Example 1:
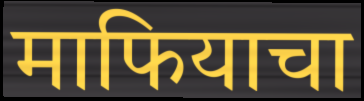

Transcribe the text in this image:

माफियाचा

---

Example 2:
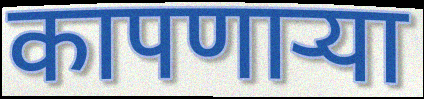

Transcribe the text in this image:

कापणाऱ्या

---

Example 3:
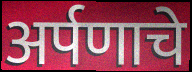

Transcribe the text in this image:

अर्पणाचे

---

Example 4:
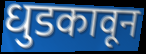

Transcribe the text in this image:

धुडकावून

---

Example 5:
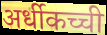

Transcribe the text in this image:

अर्धीकच्ची